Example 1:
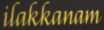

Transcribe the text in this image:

ilakkanam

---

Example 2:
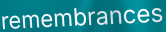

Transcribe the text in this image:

remembrances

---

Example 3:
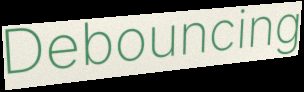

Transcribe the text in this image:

Debouncing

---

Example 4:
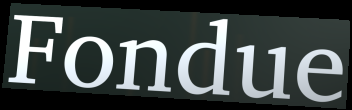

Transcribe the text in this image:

Fondue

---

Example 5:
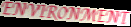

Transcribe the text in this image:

ENVIRONMENT